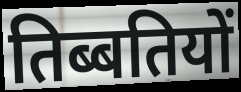
तिब्बतियों